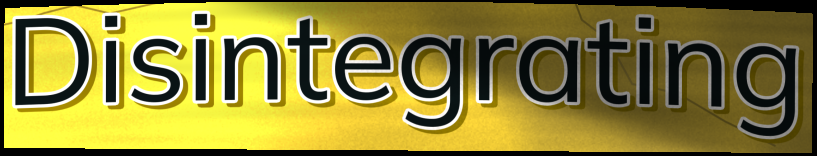
Disintegrating